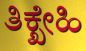
ತಿಕ್ಖೇಹಿ